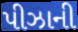
પીઝાની